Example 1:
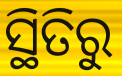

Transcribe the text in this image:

ସ୍ଥିତିରୁ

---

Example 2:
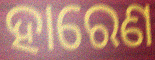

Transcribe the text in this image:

ହାରେଣ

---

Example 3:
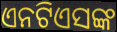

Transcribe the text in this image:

ଏନଟିଏସଙ୍କ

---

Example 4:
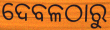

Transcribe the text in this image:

ଦେବଳଠାରୁ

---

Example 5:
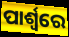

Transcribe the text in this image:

ପାର୍ଶ୍ୱରେ